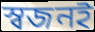
স্বজনই